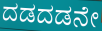
ದಡದಡನೇ